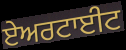
ਏਅਰਟਾਈਟ